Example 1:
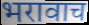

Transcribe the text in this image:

भरावाच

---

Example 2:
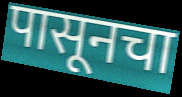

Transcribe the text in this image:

पासूनचा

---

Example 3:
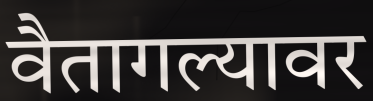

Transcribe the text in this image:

वैतागल्यावर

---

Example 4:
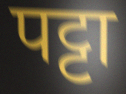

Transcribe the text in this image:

पट्टा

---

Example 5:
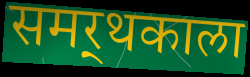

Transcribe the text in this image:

समर्थकाला